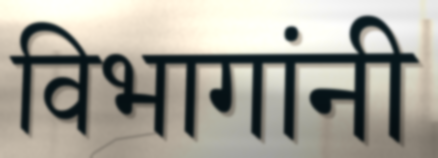
विभागांनी